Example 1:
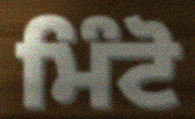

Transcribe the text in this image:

ਮਿੰਟੋ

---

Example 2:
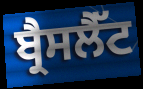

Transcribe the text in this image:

ਬ੍ਰੈਸਲੈੱਟ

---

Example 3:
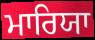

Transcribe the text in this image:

ਮਾਰਿਯਾ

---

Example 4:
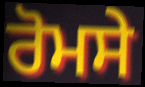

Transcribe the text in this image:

ਰੋਮਸੇ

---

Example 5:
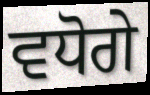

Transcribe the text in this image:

ਵਧੋਗੇ